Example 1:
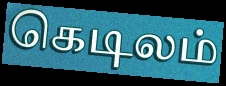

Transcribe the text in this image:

கெடிலம்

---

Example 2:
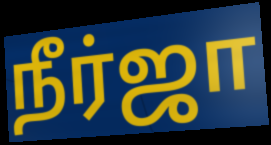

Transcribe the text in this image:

நீர்ஜா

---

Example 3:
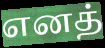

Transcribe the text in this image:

எனத்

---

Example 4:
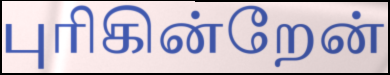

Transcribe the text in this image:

புரிகின்றேன்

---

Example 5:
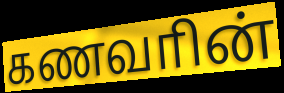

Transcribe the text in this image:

கணவரின்